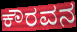
ಕೌರವನ